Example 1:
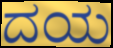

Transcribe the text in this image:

ದಯ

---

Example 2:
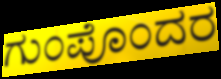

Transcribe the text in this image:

ಗುಂಪೊಂದರ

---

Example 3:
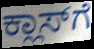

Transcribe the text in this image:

ಕ್ಲಾಸ್‌ಗೆ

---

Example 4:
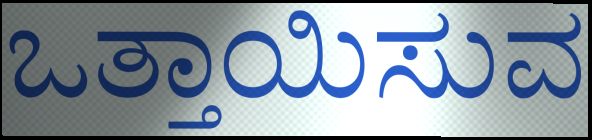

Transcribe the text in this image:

ಒತ್ತಾಯಿಸುವ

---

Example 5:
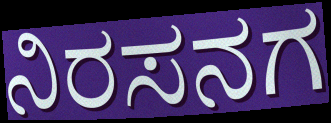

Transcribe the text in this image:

ನಿರಸನಗ